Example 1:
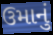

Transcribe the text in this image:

ઉમાનું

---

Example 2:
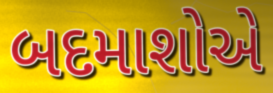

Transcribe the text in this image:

બદમાશોએ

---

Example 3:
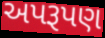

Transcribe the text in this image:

અપરૂપણ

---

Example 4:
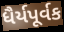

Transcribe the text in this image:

ધૈર્યપૂર્વક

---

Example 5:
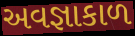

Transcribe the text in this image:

અવજ્ઞાકાળ